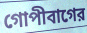
গোপীবাগের